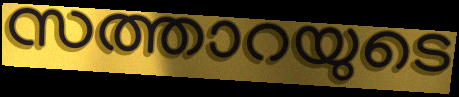
സത്താറയുടെ